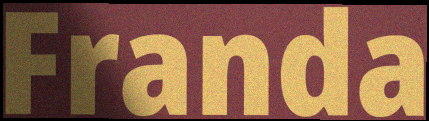
Franda